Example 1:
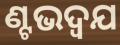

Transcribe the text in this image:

ଣ୍ଟଭଦ୍ଵଯ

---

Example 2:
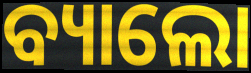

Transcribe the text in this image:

ବ୍ୟାଲୋ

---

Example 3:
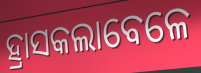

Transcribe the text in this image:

ହ୍ରାସକଲାବେଳେ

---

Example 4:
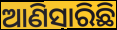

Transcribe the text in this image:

ଆଣିସାରିଛି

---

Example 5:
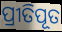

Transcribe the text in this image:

ପ୍ରୀତିପୂତ